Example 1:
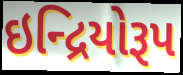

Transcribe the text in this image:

ઇન્દ્રિયોરૂપ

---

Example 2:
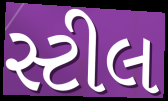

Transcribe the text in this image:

સ્ટીલ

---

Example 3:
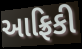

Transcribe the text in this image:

આફ્રિકી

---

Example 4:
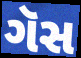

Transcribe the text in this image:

ગૅસ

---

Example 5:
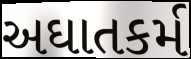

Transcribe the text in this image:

અઘાતકર્મ